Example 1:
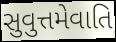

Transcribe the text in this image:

સુવુત્તમેવાતિ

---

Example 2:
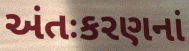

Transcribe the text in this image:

અંતઃકરણનાં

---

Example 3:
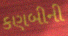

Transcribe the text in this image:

કણબીની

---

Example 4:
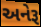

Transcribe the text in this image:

અનેરૂ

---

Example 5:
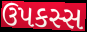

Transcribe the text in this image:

ઉપકસ્સ